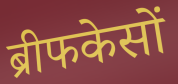
ब्रीफकेसों